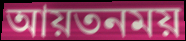
আয়তনময়